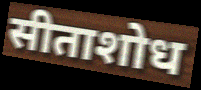
सीताशोध